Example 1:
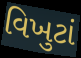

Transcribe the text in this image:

વિખુટાં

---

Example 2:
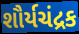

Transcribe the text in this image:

શૌર્યચંદ્રક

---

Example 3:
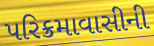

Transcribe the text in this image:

પરિક્રમાવાસીની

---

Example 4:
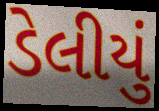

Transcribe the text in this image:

ડેલીયું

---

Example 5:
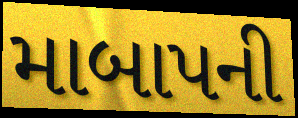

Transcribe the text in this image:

માબાપની